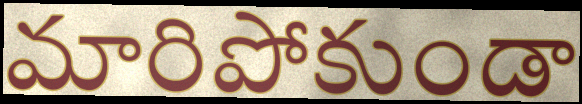
మారిపోకుండా